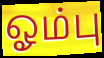
ஓம்பு